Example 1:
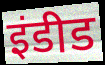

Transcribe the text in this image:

इंडीड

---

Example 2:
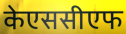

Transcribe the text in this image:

केएससीएफ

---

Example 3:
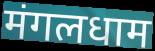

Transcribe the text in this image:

मंगलधाम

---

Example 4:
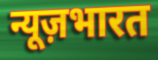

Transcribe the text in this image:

न्यूज़भारत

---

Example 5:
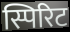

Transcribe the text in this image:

स्पिरिट